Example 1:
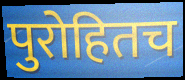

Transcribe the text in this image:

पुरोहितच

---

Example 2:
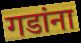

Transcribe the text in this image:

गडांना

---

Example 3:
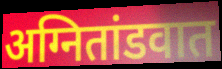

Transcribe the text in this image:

अग्नितांडवात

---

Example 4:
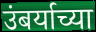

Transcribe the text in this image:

उंबर्याच्या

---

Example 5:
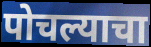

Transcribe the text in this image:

पोचल्याचा